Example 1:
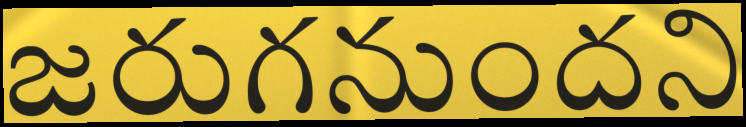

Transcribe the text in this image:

జరుగనుందని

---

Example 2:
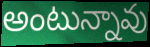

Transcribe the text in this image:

అంటున్నావు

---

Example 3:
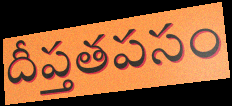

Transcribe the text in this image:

దీప్తతపసం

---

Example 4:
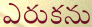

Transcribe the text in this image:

ఎరుకను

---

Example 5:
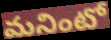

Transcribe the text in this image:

మనింటో